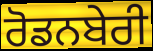
ਰੋਡਨਬੇਰੀ